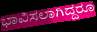
ಭಾವಿಸಲಾಗಿದ್ದರೂ